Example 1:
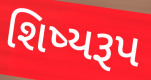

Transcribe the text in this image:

શિષ્યરૂપ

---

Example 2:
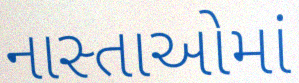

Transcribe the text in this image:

નાસ્તાઓમાં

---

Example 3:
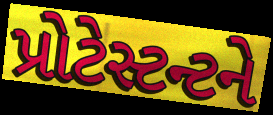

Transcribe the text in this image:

પ્રોટેસ્ટન્ટને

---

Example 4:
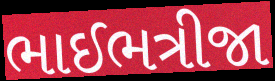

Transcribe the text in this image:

ભાઈભત્રીજા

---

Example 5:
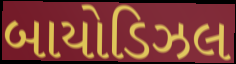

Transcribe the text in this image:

બાયોડિઝલ